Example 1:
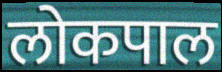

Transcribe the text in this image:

लोकपाल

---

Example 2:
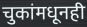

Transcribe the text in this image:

चुकांमधूनही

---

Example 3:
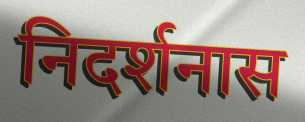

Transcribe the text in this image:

निदर्शनास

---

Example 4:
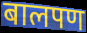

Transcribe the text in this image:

बालपण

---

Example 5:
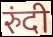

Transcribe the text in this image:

रुंदी